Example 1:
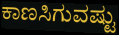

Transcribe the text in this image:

ಕಾಣಸಿಗುವಷ್ಟು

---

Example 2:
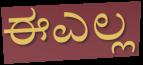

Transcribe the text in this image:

ಈಎಲ್ಲ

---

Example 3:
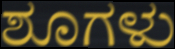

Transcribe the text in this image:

ಶೂಗಳು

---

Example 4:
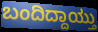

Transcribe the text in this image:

ಬಂದಿದ್ದಾಯ್ತು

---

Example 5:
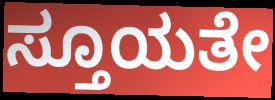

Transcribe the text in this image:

ಸ್ತೂಯತೇ